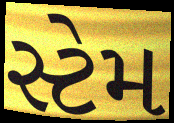
સ્ટેમ